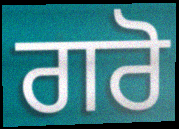
ਗਰੋ